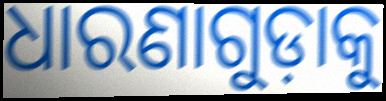
ଧାରଣାଗୁଡ଼ାକୁ